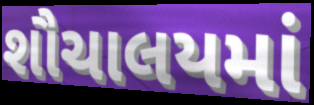
શૌચાલયમાં